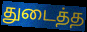
துடைத்த